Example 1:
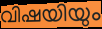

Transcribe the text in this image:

വിഷയിയും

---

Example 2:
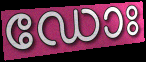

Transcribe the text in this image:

ഡോഃ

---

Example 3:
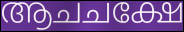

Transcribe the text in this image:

ആചചക്ഷേ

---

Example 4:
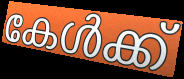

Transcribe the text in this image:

കേൾക്ക്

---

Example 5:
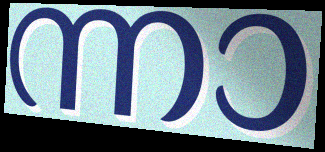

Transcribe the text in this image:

ന്നാ